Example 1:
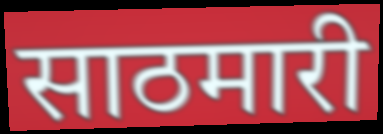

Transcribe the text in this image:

साठमारी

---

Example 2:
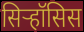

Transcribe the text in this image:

सिऱ्हॉसिस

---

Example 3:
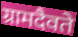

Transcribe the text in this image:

ग्रामदैवते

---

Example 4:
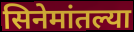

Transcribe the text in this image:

सिनेमांतल्या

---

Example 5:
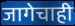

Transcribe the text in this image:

जागेचाही